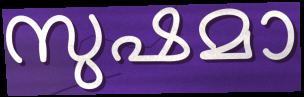
സുഷമാ